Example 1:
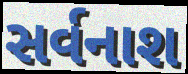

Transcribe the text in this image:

સર્વનાશ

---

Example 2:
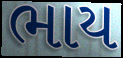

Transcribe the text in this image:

ભાય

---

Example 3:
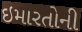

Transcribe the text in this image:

ઇમારતોની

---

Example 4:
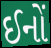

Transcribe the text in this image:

ઈનોં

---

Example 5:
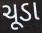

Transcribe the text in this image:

ચૂડા